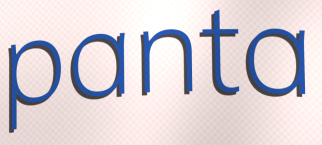
panta